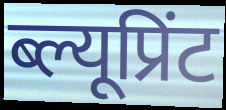
ब्ल्यूप्रिंट